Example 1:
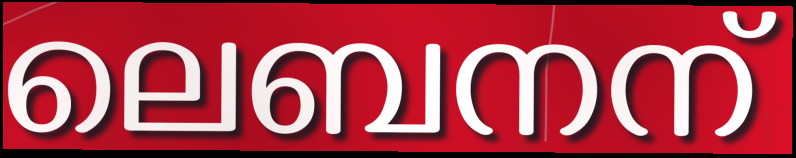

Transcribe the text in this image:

ലെബനന്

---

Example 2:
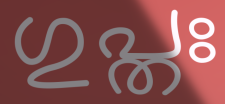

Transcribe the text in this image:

ഗുപ്തഃ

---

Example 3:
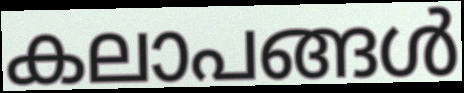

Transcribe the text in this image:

കലാപങ്ങൾ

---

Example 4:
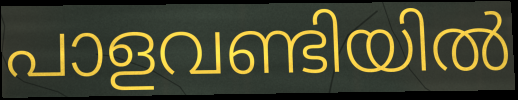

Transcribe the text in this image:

പാളവണ്ടിയിൽ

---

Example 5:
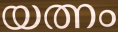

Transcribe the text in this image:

യത്നം